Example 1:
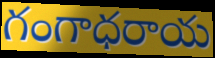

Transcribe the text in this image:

గంగాధరాయ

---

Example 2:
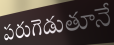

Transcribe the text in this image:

పరుగెడుతూనే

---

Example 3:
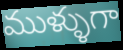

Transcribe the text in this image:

ముళ్ళుగా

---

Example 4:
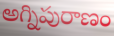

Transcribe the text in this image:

అగ్నిపురాణం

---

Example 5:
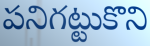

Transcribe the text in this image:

పనిగట్టుకొని